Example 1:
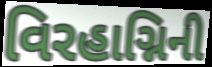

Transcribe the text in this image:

વિરહાગ્નિની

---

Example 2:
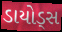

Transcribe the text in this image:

ડાયોડ્સ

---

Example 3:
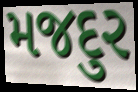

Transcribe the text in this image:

મજદુર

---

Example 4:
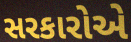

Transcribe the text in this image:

સરકારોએ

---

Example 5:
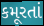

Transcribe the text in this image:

કમૂરતાં